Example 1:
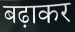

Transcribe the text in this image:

बढ़ाकर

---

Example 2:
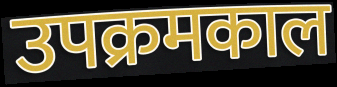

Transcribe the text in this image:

उपक्रमकाल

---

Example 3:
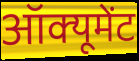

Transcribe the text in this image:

ऑक्यूमेंट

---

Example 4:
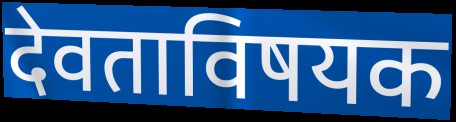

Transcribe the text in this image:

देवताविषयक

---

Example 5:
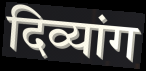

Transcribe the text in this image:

दिव्यांग